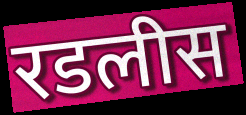
रडलीस